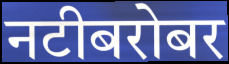
नटीबरोबर